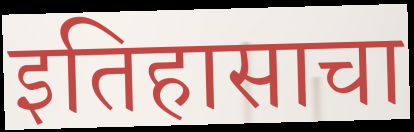
इतिहासाचा